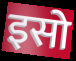
इसो